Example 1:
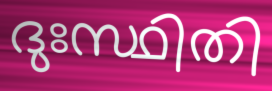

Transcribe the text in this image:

ദുഃസ്ഥിതി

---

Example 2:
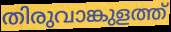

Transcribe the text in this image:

തിരുവാങ്കുളത്ത്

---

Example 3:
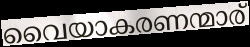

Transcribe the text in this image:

വൈയാകരണന്മാര്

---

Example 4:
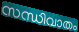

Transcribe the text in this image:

സന്ധിവാതം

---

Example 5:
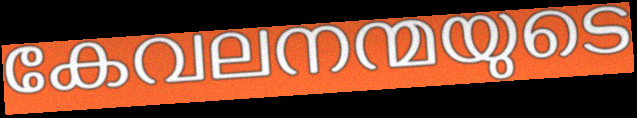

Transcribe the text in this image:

കേവലനന്മയുടെ